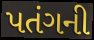
પતંગની